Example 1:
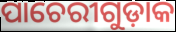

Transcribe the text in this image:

ପାଚେରୀଗୁଡ଼ାକ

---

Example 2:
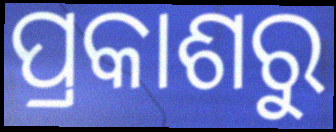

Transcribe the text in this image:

ପ୍ରକାଶରୁ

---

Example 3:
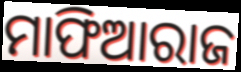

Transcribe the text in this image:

ମାଫିଆରାଜ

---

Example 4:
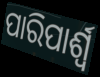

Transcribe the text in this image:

ପାରିପାର୍ଶ୍ୱ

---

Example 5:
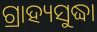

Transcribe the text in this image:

ଗ୍ରାହ୍ୟସୁଦ୍ଧା